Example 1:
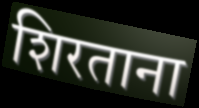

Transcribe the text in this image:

शिरताना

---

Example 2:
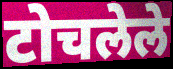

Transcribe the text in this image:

टोचलेले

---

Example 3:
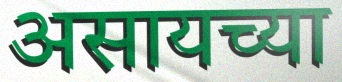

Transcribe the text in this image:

असायच्या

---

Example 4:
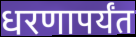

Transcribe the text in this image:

धरणापर्यंत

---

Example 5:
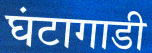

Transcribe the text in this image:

घंटागाडी